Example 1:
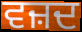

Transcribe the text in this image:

ਵਜ਼ਦ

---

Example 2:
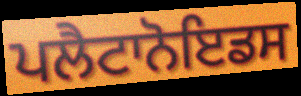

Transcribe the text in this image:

ਪਲੈਟਾਨੋਇਡਸ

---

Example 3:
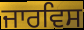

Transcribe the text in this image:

ਜਾਰਵਿਸ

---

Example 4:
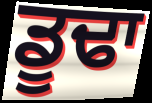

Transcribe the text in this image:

ਡੂਢਾ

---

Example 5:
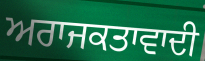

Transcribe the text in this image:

ਅਰਾਜਕਤਾਵਾਦੀ